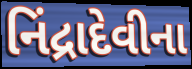
નિંદ્રાદેવીના